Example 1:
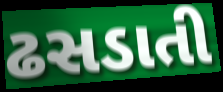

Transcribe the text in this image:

ઢસડાતી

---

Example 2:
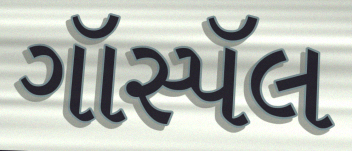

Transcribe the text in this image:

ગૉસ્પૅલ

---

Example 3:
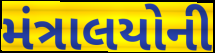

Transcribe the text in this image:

મંત્રાલયોની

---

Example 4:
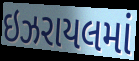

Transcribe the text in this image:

ઇઝરાયલમાં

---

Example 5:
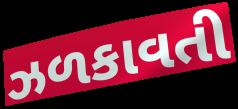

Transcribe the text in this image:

ઝળકાવતી